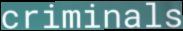
criminals